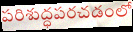
పరిశుద్ధపరచడంలో